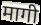
मागी